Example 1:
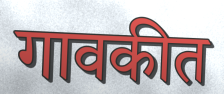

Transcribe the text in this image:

गावकीत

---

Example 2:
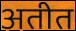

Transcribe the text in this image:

अतीत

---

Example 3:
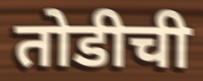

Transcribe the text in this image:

तोडीची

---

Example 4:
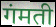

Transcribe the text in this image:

गंमती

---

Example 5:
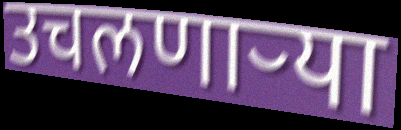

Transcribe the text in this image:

उचलणाऱ्या